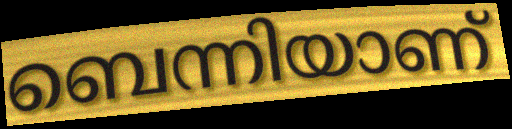
ബെന്നിയാണ്